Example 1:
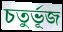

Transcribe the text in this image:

চতুৰ্ভূজ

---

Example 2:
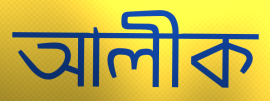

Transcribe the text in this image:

আলীক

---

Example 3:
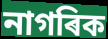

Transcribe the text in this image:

নাগৰিক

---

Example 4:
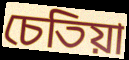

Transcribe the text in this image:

চেতিয়া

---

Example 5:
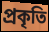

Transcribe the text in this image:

প্ৰকৃতি